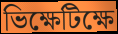
ভিক্ষেটিক্ষে